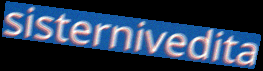
sisternivedita